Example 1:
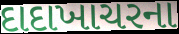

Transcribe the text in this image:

દાદાખાચરના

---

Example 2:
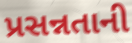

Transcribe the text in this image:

પ્રસન્નતાની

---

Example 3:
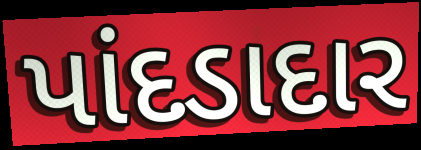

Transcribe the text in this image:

પાંદડાદાર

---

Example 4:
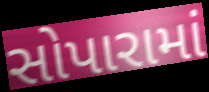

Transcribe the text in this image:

સોપારામાં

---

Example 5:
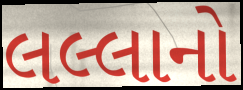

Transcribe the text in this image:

લલ્લાનો